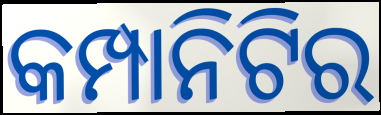
କମ୍ପାନିଟିର